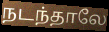
நடந்தாலே